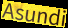
Asundi